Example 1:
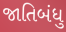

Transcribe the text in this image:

જાતિબંધુ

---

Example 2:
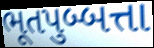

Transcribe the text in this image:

ભૂતપુબ્બત્તા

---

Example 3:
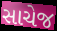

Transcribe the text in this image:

સાચેજ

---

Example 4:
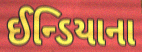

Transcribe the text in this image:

ઈન્ડિયાના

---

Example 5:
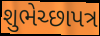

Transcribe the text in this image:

શુભેચ્છાપત્ર